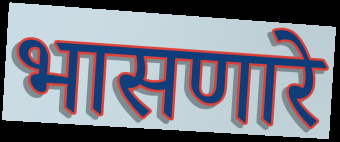
भासणारे